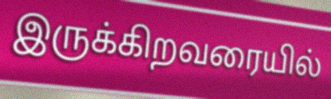
இருக்கிறவரையில்